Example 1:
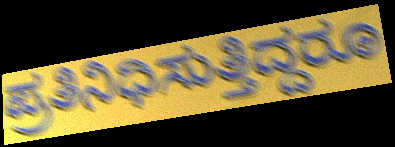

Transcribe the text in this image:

ಪ್ರತಿನಿಧಿಸುತ್ತಿದ್ದರೂ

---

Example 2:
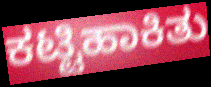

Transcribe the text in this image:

ಕಟ್ಟಿಹಾಕಿತು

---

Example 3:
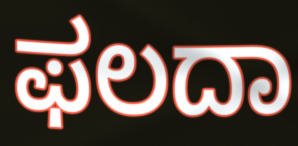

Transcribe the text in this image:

ಫಲದಾ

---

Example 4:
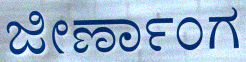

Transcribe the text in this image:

ಜೀರ್ಣಾಂಗ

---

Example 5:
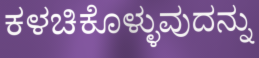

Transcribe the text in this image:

ಕಳಚಿಕೊಳ್ಳುವುದನ್ನು